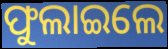
ଫୁଲାଇଲେ